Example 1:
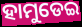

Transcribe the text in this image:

ହାମୁଡେଇ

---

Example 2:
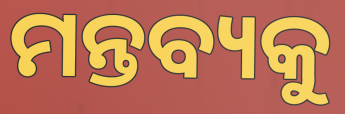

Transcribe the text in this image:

ମନ୍ତବ୍ୟକୁ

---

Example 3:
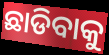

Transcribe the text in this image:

ଛାଡିବାକୁ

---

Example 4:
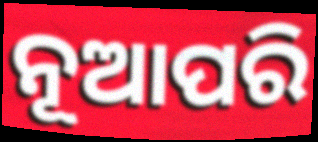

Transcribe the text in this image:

ନୂଆପରି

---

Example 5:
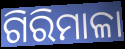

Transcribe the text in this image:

ଗିରିମାଳା